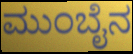
ಮುಂಬೈನ